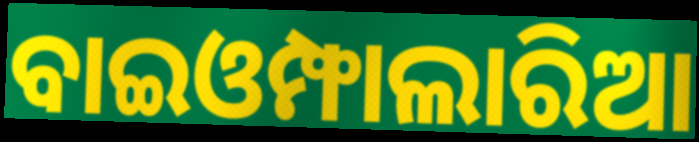
ବାଇଓମ୍ଫାଲାରିଆ